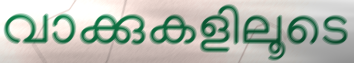
വാക്കുകളിലൂടെ